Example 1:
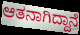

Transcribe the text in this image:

ಆತನಾಗಿದ್ದಾನೆ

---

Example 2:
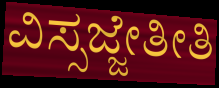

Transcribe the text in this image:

ವಿಸ್ಸಜ್ಜೇತೀತಿ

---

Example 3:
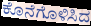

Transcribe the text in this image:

ಕೊನೆಗೊಳಿಸಿದ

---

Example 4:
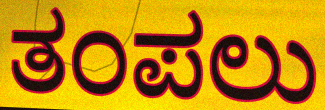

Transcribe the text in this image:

ತಂಪಲು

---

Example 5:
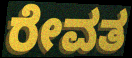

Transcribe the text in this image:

ರೇವತ